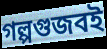
গল্পগুজবই